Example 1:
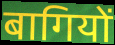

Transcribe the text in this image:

बागियों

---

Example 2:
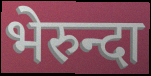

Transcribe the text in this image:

भेरुन्दा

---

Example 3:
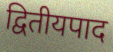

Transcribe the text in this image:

द्वितीयपाद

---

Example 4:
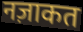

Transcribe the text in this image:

नज़ाकत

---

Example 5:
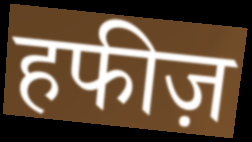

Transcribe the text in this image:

हफीज़